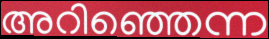
അറിഞ്ഞെന്ന